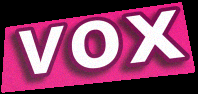
vox